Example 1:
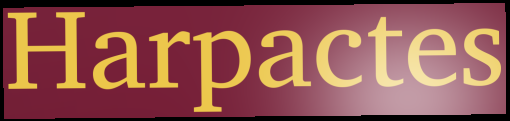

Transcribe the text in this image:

Harpactes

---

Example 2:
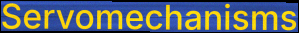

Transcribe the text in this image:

Servomechanisms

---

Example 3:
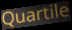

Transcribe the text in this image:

Quartile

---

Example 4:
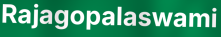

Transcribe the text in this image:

Rajagopalaswami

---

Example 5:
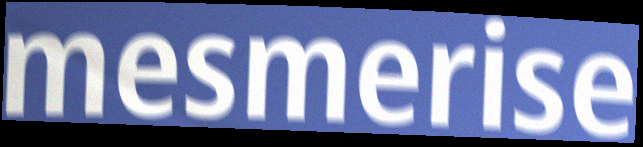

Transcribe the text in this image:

mesmerise